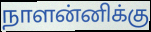
நாளன்னிக்கு